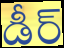
డీర్